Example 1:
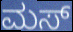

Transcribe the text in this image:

ಮಸ್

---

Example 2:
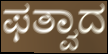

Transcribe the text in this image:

ಫತ್ವಾದ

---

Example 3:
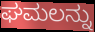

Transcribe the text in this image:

ಘಮಲನ್ನು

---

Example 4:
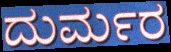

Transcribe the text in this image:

ದುರ್ಮರ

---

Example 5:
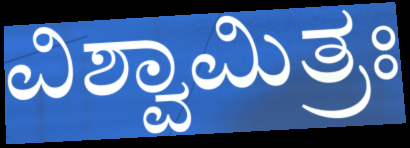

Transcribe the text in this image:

ವಿಶ್ವಾಮಿತ್ರಃ